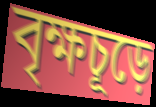
বৃক্ষচূড়ে